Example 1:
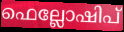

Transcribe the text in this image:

ഫെല്ലോഷിപ്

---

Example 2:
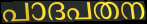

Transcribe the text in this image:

പാദപതന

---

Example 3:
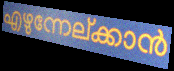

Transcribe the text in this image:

എഴുന്നേല്ക്കാൻ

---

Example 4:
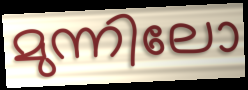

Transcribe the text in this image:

മുന്നിലോ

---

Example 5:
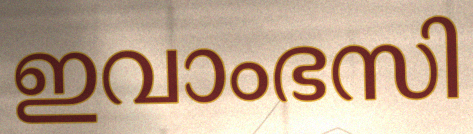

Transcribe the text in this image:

ഇവാംഭസി